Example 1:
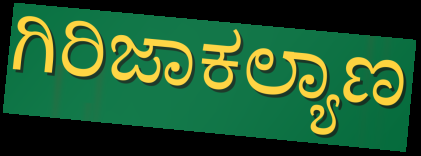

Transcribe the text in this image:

ಗಿರಿಜಾಕಲ್ಯಾಣ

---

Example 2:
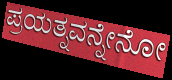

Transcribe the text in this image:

ಪ್ರಯತ್ನವನ್ನೇನೋ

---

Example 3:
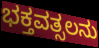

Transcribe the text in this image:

ಭಕ್ತವತ್ಸಲನು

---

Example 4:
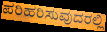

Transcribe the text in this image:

ಪರಿಹರಿಸುವುದರಲ್ಲಿ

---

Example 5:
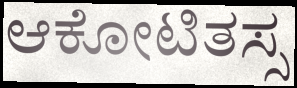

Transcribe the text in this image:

ಆಕೋಟಿತಸ್ಸ